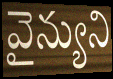
వైన్యుని